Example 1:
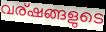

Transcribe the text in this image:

വര്ഷങ്ങളുടെ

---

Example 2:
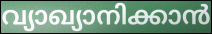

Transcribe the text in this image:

വ്യാഖ്യാനിക്കാൻ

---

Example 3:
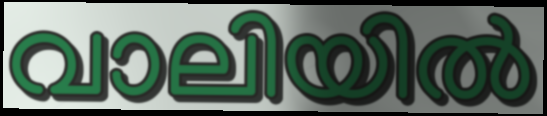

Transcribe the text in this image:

വാലിയിൽ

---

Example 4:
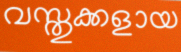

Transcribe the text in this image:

വസ്തുക്കളായ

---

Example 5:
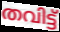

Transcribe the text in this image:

തവിട്ട്